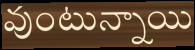
వుంటున్నాయి